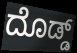
ದೊಡ್ಡ್